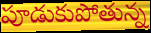
పూడుకుపోతున్న